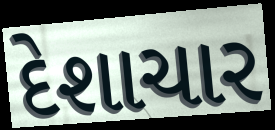
દેશાચાર